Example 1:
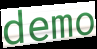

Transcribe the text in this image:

demo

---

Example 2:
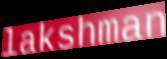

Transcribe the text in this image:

lakshman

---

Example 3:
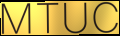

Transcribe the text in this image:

MTUC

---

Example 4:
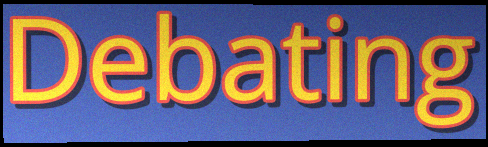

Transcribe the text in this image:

Debating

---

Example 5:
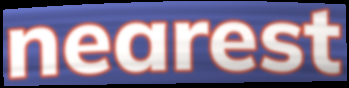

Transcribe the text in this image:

nearest